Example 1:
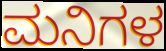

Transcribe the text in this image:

ಮನಿಗಳ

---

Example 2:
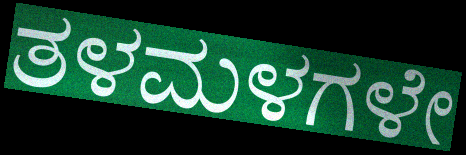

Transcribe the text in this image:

ತಳಮಳಗಳೇ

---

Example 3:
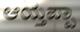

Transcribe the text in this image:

ಆಯ್ತಪ್ಪಾ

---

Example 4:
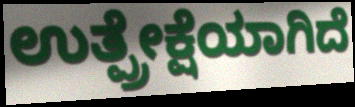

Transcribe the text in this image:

ಉತ್ಪ್ರೇಕ್ಷೆಯಾಗಿದೆ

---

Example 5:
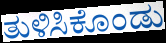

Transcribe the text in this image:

ತುಳಿಸಿಕೊಂಡು